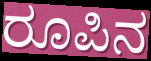
ರೂಪಿನ